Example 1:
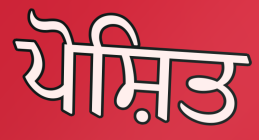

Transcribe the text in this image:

ਪੋਸ਼ਿਤ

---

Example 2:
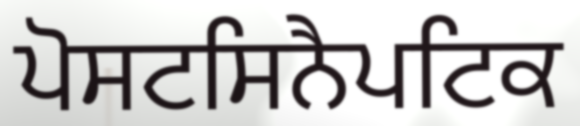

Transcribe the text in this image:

ਪੋਸਟਸਿਨੈਪਟਿਕ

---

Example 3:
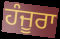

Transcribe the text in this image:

ਹੰਜੂਰਾ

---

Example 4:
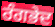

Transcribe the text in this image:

ਰੰਗਭੇਦ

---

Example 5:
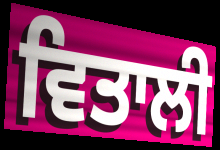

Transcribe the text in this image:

ਵਿਤਾਲੀ